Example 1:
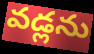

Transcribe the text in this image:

వడ్లను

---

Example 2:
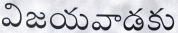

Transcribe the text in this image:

విజయవాడకు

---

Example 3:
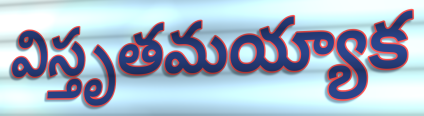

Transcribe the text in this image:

విస్తృతమయ్యాక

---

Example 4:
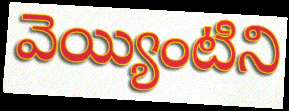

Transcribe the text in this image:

వెయ్యింటిని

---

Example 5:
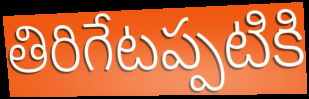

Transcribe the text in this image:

తిరిగేటప్పటికి